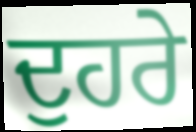
ਦੁਹਰੇ